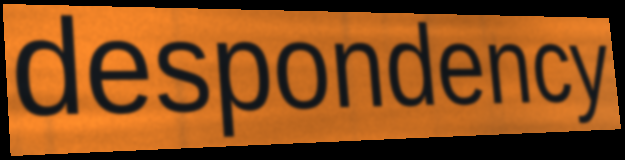
despondency